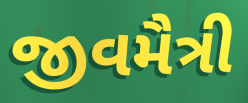
જીવમૈત્રી